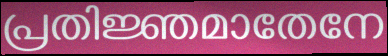
പ്രതിജ്ഞമാതേനേ